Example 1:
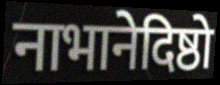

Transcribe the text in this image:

नाभानेदिष्ठो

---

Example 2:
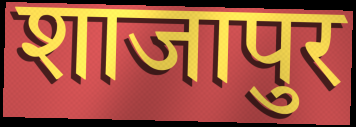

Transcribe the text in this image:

शाजापुर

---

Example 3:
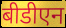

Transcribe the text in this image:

बीडीएन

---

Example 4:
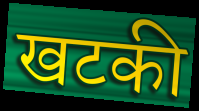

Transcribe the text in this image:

खटकी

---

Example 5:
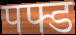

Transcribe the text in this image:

पफ्ड